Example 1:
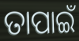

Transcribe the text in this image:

ତାପାଇଁ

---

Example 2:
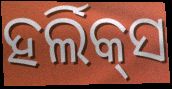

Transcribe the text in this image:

ହର୍ଲିକ୍‌ସ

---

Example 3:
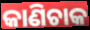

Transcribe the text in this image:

କାଣିଚାକ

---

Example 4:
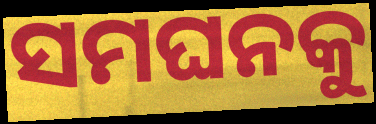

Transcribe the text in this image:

ସମଘନକୁ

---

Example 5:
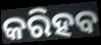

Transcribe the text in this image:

କରିହବ